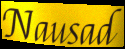
Nausad